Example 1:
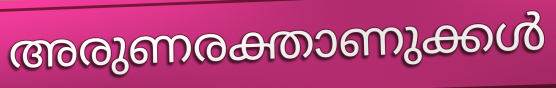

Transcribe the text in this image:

അരുണരക്താണുക്കൾ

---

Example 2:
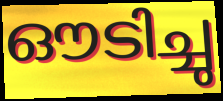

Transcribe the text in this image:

ഔടിച്ചു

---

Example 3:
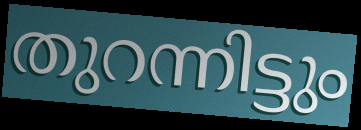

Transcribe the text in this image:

തുറന്നിട്ടും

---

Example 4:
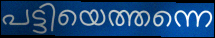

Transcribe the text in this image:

പട്ടിയെത്തന്നെ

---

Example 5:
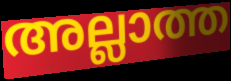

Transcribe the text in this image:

അല്ലാത്ത